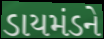
ડાયમંડને